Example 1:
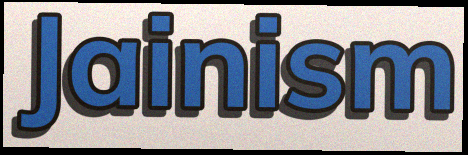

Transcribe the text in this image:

Jainism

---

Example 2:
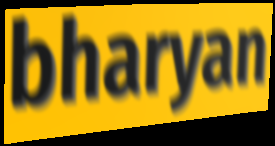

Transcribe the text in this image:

bharyan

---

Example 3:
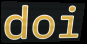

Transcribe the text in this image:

doi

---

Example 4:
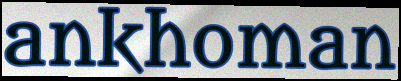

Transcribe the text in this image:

ankhoman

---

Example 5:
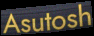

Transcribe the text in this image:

Asutosh